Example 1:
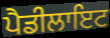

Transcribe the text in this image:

ਪੈਡੀਲਾਇਟ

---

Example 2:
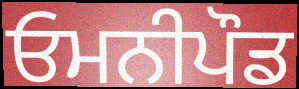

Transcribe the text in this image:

ਓਮਨੀਪੌਡ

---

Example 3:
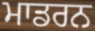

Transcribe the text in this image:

ਮਾਡਰਨ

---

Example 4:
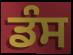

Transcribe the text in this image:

ਡੰਸ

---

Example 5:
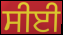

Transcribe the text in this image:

ਸੀਈ